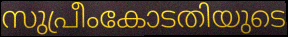
സുപ്രീംകോടതിയുടെ